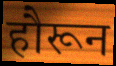
हौरून